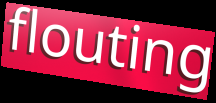
flouting